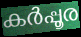
കർപ്പൂര